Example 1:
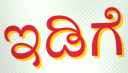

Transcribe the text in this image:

ಇಡಿಗೆ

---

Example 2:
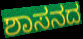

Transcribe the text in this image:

ಶಾಸನದ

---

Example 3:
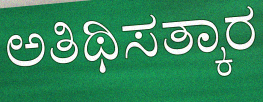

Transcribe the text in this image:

ಅತಿಥಿಸತ್ಕಾರ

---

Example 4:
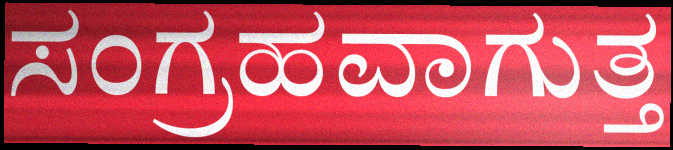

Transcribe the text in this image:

ಸಂಗ್ರಹವಾಗುತ್ತ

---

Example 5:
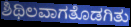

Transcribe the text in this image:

ಶಿಥಿಲವಾಗತೊಡಗಿತು